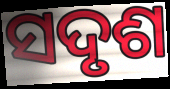
ସଦୃଶ